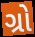
ગ્રો